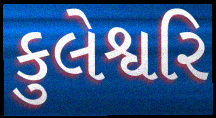
કુલેશ્વરિ